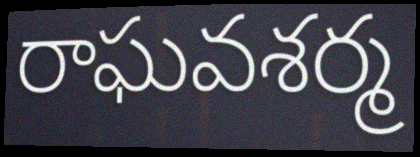
రాఘవశర్మ